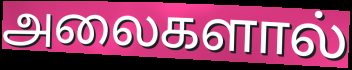
அலைகளால்